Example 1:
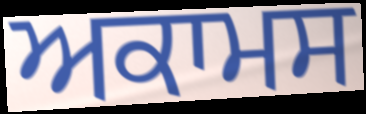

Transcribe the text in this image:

ਅਕਾਮਸ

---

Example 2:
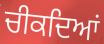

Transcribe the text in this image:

ਚੀਕਦਿਆਂ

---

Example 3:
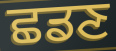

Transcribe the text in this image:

ਛਡਣ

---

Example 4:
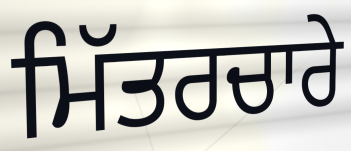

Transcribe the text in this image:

ਮਿੱਤਰਚਾਰੇ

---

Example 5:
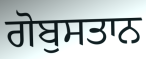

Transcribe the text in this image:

ਗੋਬੁਸਤਾਨ